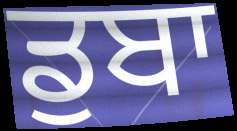
ਡੁਬਾ